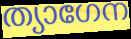
ത്യാഗേന